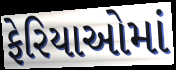
ફેરિયાઓમાં